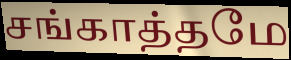
சங்காத்தமே